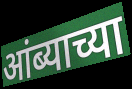
आंब्याच्या